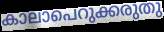
കാലാപെറുക്കരുതു